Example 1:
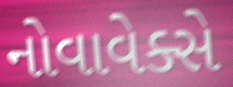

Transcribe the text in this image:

નોવાવેક્સે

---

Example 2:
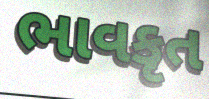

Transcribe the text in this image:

ભાવકૃત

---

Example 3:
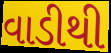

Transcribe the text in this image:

વાડીથી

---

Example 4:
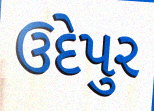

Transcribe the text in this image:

ઉદેપુર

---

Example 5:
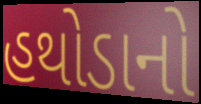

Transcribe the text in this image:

હથોડાનો